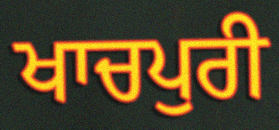
ਖਾਚਪੁਰੀ